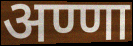
अण्णा